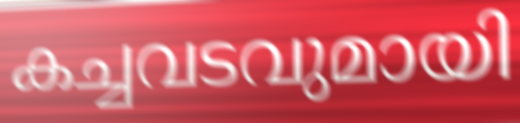
കച്ചവടവുമായി